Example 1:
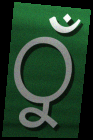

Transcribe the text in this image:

ଠୁଁ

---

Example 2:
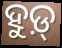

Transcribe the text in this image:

ହୁଡ଼୍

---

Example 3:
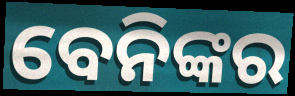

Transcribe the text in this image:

ବେନିଙ୍କର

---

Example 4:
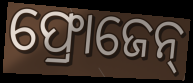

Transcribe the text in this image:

ଫ୍ରୋଜେନ୍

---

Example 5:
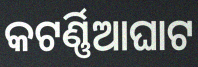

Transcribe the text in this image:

କଟର୍ଣ୍ଣିଆଘାଟ